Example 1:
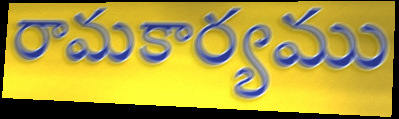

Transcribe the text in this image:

రామకార్యము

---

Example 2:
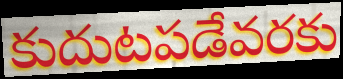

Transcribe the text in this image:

కుదుటపడేవరకు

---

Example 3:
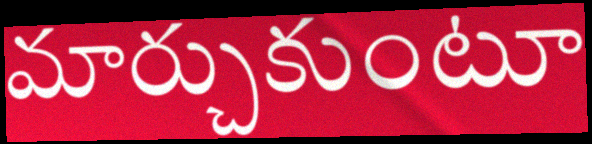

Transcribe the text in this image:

మార్చుకుంటూ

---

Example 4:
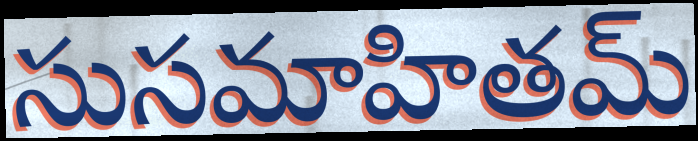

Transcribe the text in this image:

సుసమాహితమ్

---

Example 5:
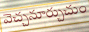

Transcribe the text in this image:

వెచ్చనూర్చుచుం